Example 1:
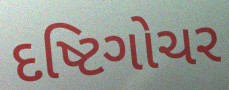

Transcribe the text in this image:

દષ્ટિગોચર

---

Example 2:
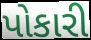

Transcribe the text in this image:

પોકારી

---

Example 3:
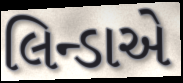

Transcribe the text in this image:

લિન્ડાએ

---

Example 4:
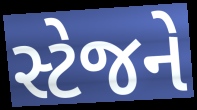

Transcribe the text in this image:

સ્ટેજને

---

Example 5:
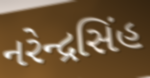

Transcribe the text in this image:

નરેન્દ્રસિંહ